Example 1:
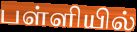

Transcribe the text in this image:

பள்ளியில்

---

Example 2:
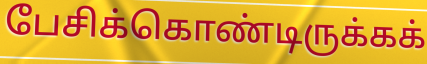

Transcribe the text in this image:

பேசிக்கொண்டிருக்கக்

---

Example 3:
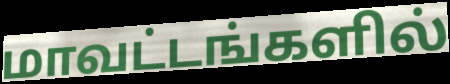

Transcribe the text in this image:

மாவட்டங்களில்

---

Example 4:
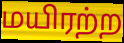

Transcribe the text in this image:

மயிரற்ற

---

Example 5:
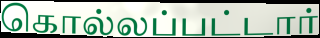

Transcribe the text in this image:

கொல்லப்பட்டார்